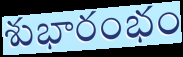
శుభారంభం